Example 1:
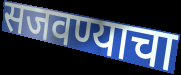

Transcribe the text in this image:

सजवण्याचा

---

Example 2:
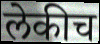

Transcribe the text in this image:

लेकीच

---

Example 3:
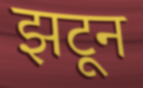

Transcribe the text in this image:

झटून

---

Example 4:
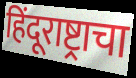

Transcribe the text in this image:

हिंदूराष्ट्राचा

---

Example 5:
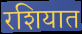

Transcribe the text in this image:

रशियात